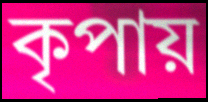
কৃপায়